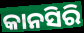
କାନସିରି